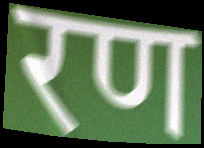
रण